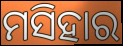
ମସିହାର